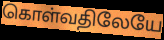
கொள்வதிலேயே